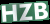
HZB